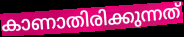
കാണാതിരിക്കുന്നത്